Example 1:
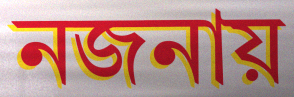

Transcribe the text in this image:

নজনায়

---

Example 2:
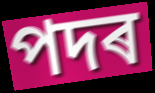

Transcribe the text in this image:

পদৰ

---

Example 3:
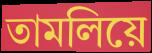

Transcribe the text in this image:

তামলিয়ে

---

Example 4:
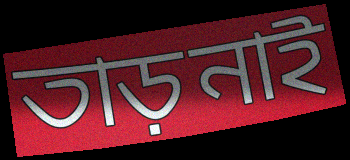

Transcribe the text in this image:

তাড়নাই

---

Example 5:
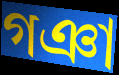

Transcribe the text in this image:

গঞা